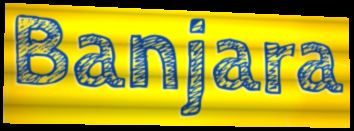
Banjara